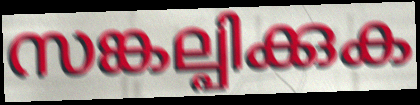
സങ്കല്പിക്കുക